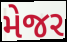
મેજર